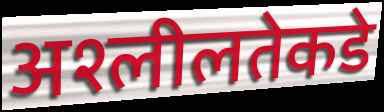
अश्लीलतेकडे